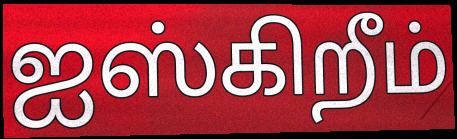
ஐஸ்கிறீம்